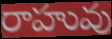
రాహువు